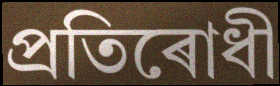
প্ৰতিৰোধী